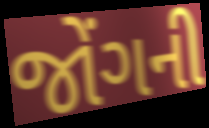
જોંગની